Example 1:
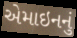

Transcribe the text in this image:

એમાઇનનું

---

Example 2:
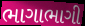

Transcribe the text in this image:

ભાગાભાગી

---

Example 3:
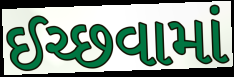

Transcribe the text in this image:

ઈચ્છવામાં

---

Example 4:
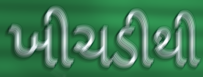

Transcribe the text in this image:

ખીચડીથી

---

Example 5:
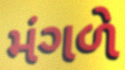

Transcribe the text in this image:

મંગળે